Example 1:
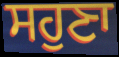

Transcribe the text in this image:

ਸਹੁਣਾ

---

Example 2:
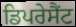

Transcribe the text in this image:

ਡਿਪਰੇਸੈਂਟ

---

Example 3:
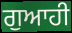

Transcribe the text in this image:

ਗੁਆਹੀ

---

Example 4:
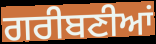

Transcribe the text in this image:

ਗਰੀਬਣੀਆਂ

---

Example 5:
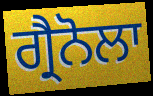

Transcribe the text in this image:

ਗ੍ਰੈਨੋਲਾ